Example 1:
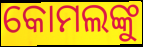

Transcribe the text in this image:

କୋମଲଙ୍କୁ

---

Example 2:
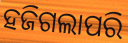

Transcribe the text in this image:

ହଜିଗଲାପରି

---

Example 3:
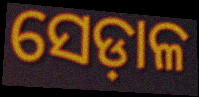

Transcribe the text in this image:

ସେଡ଼ାଳ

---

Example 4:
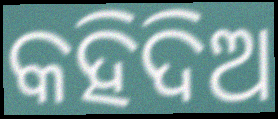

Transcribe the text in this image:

କହିଦିଅ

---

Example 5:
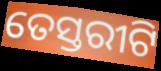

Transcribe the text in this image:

ତେସ୍ତରୀଟି